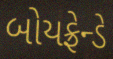
બોયફ્રેન્ડે